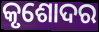
କୃଶୋଦର